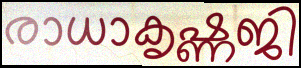
രാധാകൃഷ്ണജി